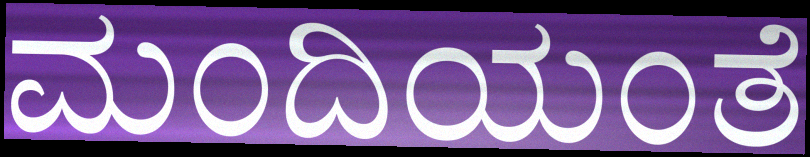
ಮಂದಿಯಂತೆ